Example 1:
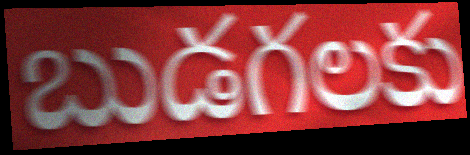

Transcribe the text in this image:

బుడగలకు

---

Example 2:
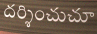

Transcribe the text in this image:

దర్శించుచూ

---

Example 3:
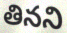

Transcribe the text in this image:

తినని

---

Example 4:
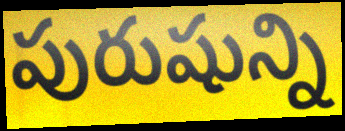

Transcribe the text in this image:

పురుషున్ని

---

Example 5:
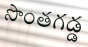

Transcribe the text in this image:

సొంతగడ్డ